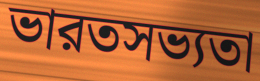
ভারতসভ্যতা